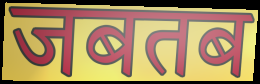
जबतब